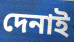
দেনাই